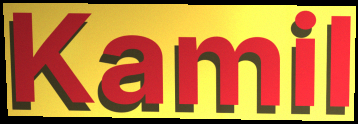
Kamil